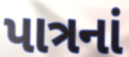
પાત્રનાં